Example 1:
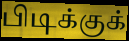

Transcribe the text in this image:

பிடிக்குக்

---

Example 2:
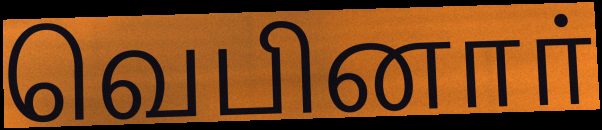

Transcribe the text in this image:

வெபினார்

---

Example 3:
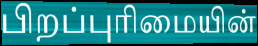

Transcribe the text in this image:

பிறப்புரிமையின்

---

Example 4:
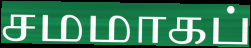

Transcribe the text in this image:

சமமாகப்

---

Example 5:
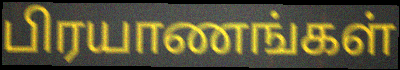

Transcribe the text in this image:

பிரயாணங்கள்